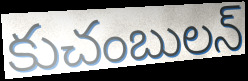
కుచంబులన్